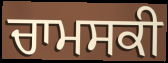
ਚਾਮਸਕੀ